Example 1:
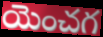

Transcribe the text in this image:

యెంచగ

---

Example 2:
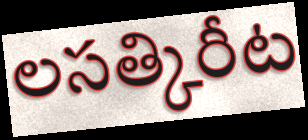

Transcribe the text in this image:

లసత్కిరీట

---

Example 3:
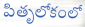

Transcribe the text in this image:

పితృలోకంలో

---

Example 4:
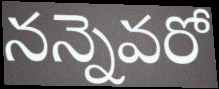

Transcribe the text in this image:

నన్నెవరో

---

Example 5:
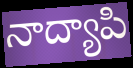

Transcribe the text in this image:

నాద్యాపి